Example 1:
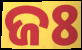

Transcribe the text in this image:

ଜଃ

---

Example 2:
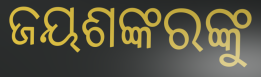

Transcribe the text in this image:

ଜୟଶଙ୍କରଙ୍କୁ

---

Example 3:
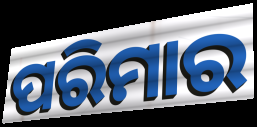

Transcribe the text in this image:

ପରିମାର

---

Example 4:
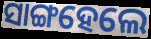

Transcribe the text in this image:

ସାଙ୍ଗହେଲେ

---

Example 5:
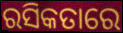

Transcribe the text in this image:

ରସିକତାରେ